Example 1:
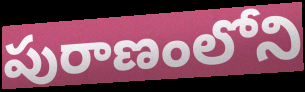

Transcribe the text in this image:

పురాణంలోని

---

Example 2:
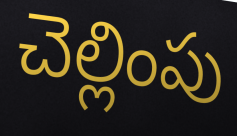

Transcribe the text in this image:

చెల్లింపు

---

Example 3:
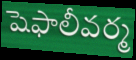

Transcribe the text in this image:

షెఫాలీవర్మ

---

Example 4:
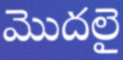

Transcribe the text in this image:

మొదలై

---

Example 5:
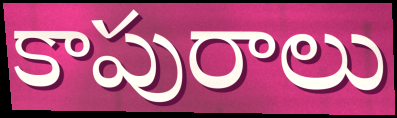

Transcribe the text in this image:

కాపురాలు